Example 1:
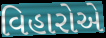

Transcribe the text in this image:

વિહારોએ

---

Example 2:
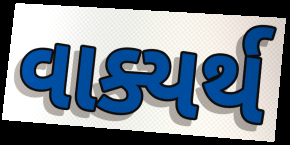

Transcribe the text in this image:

વાક્યર્થ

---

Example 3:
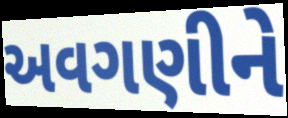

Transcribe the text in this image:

અવગણીને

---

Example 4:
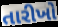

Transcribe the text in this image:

તારીખો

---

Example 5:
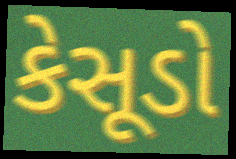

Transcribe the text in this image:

કેસૂડો